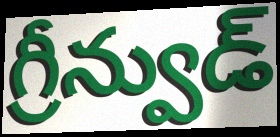
గ్రీన్వుడ్